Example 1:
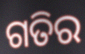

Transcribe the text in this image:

ଗତିର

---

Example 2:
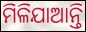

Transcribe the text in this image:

ମିଳିଯାଆନ୍ତି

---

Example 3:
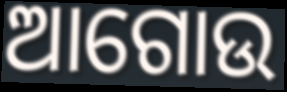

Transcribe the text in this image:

ଆଗୋଉ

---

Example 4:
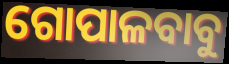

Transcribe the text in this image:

ଗୋପାଳବାବୁ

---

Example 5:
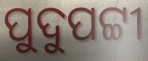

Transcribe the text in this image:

ପୁଦୁପଟ୍ଟୀ